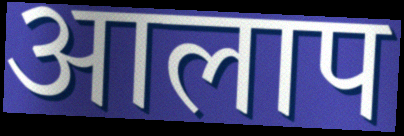
आलाप